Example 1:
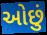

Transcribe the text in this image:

ઓછું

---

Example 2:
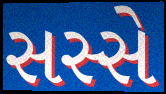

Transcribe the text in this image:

સસ્સે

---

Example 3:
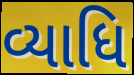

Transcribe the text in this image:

વ્યાધિ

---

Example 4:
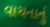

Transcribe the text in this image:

વાચનાનું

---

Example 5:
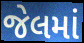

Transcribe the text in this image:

જેલમાં